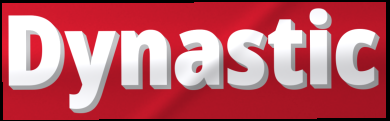
Dynastic